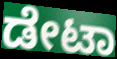
ಡೇಟಾ